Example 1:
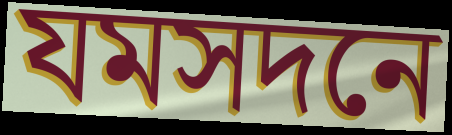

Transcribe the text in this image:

যমসদনে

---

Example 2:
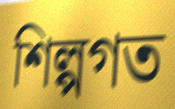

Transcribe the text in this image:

শিল্পগত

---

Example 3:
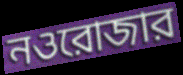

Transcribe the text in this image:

নওরোজার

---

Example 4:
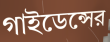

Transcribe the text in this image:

গাইডেন্সের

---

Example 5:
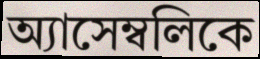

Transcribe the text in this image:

অ্যাসেম্বলিকে